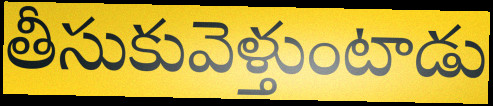
తీసుకువెళ్తుంటాడు